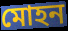
মোহন